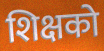
शिक्षको